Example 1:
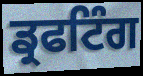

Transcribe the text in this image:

ਡ੍ਰਫਟਿੰਗ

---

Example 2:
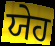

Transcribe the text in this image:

ਯੇਹ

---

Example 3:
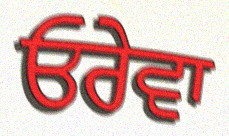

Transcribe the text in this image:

ਓਰੇਵਾ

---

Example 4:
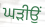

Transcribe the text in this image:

ਘੜੀਉਂ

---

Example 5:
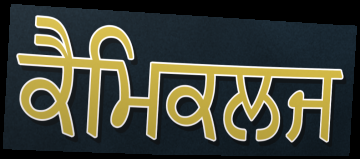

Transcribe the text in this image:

ਕੈਮਿਕਲਜ